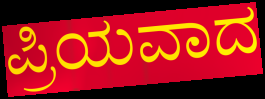
ಪ್ರಿಯವಾದ